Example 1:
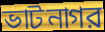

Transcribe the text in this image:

ভাটনাগর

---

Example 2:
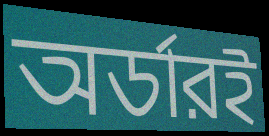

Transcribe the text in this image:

অর্ডারই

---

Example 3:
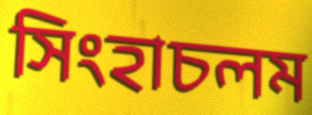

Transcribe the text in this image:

সিংহাচলম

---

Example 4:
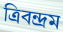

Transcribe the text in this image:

ত্রিবন্দ্রম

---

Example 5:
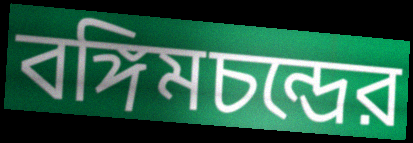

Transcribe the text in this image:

বঙ্গিমচন্দ্রের